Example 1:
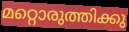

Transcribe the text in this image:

മറ്റൊരുത്തിക്കു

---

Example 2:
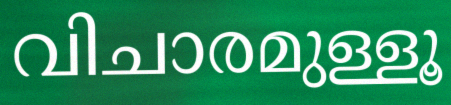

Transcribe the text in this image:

വിചാരമുള്ളൂ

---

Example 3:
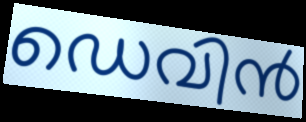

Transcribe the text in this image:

ഡെവിൻ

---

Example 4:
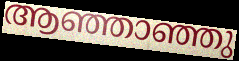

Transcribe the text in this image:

ആഞ്ഞാഞ്ഞു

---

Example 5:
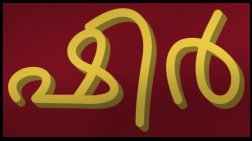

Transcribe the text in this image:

ഷിർ